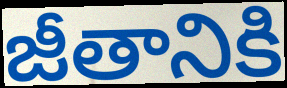
జీతానికి